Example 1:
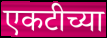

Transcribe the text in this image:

एकटीच्या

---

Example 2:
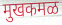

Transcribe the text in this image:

मुखकमळ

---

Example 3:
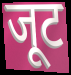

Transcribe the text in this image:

जूट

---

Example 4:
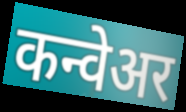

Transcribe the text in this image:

कन्वेअर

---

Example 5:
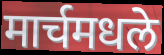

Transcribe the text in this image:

मार्चमधले